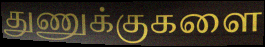
துணுக்குகளை